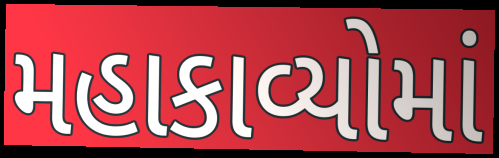
મહાકાવ્યોમાં